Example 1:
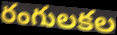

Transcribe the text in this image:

రంగులకల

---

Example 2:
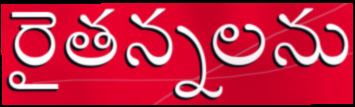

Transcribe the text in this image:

రైతన్నలను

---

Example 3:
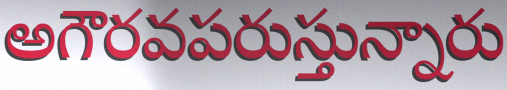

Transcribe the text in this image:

అగౌరవపరుస్తున్నారు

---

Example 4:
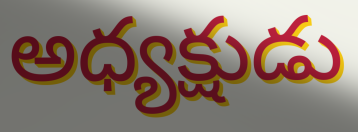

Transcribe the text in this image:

అధ్యక్షుడు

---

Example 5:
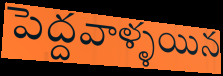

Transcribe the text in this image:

పెద్దవాళ్ళయిన